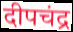
दीपचंद्र